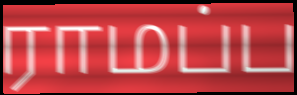
ராமப்ப